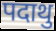
पदाथु